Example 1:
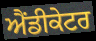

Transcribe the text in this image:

ਐਂਡੀਕੇਟਰ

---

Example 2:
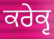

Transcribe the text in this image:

ਕਰੇਕ੍ਟ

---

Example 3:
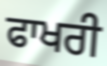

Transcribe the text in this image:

ਫਾਖਰੀ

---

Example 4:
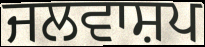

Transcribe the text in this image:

ਜਲਵਾਸ਼ਪ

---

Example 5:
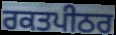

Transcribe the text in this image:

ਰਕਤਪੀਠਰ